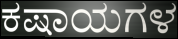
ಕಷಾಯಗಳ